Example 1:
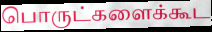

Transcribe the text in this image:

பொருட்களைக்கூட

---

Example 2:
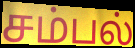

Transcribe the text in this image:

சம்பல்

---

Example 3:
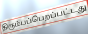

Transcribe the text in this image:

திரும்பப்பெறப்பட்டது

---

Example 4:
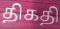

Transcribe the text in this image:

திகதி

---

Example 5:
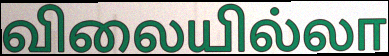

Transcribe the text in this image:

விலையில்லா